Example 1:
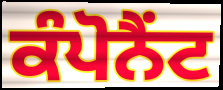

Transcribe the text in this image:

ਕੰਪੋਨੈਂਟ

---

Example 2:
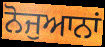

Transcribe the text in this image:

ਨੋਜੁਆਨਾਂ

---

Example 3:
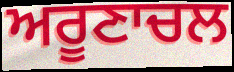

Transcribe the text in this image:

ਅਰੂਣਾਚਲ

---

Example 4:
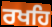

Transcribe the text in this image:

ਰਖਹਿ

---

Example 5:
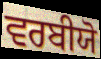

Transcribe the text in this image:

ਵਰਬੀਯੋ